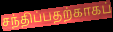
சந்திப்பதற்காகப்